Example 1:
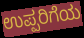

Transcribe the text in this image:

ಉಪ್ಪರಿಗೆಯ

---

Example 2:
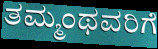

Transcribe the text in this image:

ತಮ್ಮಂಥವರಿಗೆ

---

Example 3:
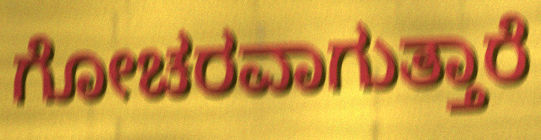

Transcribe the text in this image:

ಗೋಚರವಾಗುತ್ತಾರೆ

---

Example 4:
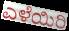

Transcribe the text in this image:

ಎಳೆಯಿರಿ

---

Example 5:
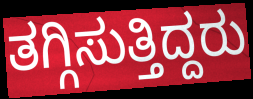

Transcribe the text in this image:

ತಗ್ಗಿಸುತ್ತಿದ್ದರು